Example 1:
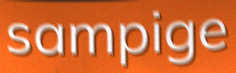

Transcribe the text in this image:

sampige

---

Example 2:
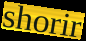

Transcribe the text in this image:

shorir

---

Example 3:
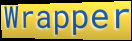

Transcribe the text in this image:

Wrapper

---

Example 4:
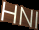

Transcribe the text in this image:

HNI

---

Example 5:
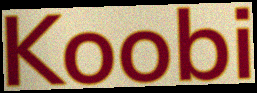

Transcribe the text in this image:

Koobi